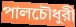
পালচৌধুরী